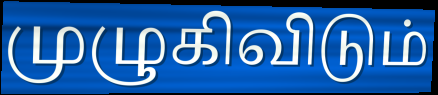
முழுகிவிடும்